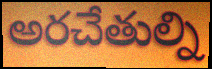
అరచేతుల్ని